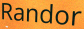
Randor